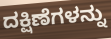
ದಕ್ಷಿಣೆಗಳನ್ನು